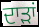
ਦਾੜਾਂ